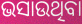
ଭସାଉଥିବା